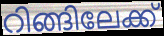
റിങ്ങിലേക്ക്